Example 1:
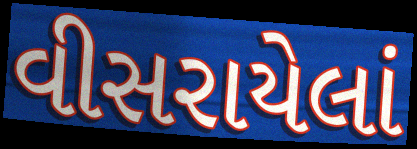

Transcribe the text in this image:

વીસરાયેલાં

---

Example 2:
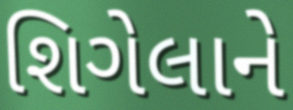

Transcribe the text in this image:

શિગેલાને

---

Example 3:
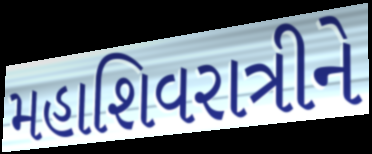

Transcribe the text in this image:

મહાશિવરાત્રીને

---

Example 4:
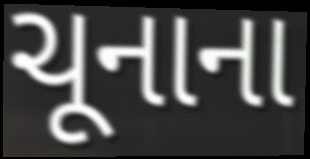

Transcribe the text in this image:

ચૂનાના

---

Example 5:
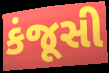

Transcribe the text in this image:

કંજૂસી